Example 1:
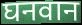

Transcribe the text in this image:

घनवान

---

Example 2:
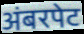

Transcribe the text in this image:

अंबरपेट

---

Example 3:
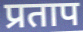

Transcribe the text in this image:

प्रताप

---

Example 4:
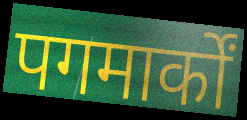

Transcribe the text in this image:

पगमार्कों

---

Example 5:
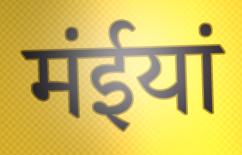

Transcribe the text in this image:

मंईयां